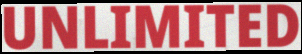
UNLIMITED